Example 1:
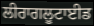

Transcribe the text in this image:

ਲੀਰਾਗਲੂਟਾਈਡ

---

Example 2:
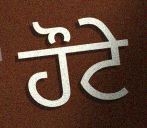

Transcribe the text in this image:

ਹੌਟੇ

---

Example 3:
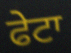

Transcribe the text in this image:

ਫੇਟਾ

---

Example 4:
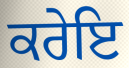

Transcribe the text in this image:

ਕਰੇਇ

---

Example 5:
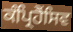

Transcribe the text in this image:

ਕੰਪ੍ਰਿਹੈਂਸਿਵ